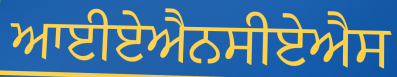
ਆਈਏਐਨਸੀਏਐਸ